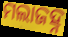
ମଲାଜହ୍ନ